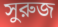
সুরুজ